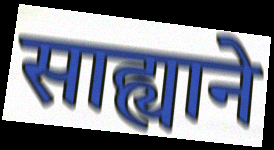
साह्याने